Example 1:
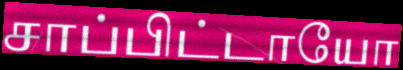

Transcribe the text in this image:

சாப்பிட்டாயோ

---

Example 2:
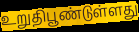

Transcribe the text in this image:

உறுதிபூண்டுள்ளது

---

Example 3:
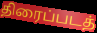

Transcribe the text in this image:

திரைப்படத்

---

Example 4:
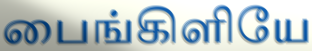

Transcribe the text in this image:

பைங்கிளியே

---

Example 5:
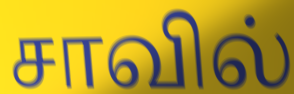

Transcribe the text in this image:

சாவில்